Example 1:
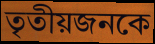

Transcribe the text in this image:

তৃতীয়জনকে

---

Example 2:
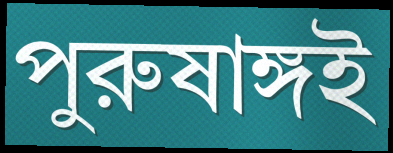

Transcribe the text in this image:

পুরুষাঙ্গই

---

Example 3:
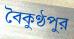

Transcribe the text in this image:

বৈকুণ্ঠপুর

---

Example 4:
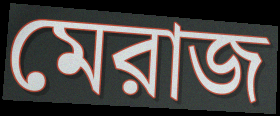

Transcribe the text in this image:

মেরাজ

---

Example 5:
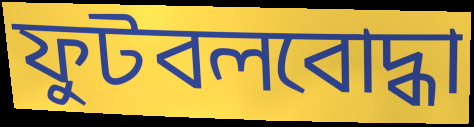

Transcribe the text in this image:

ফুটবলবোদ্ধা